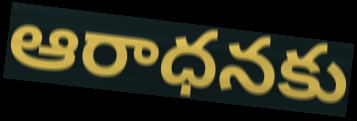
ఆరాధనకు